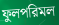
ফুলপরিমল